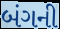
બંગની